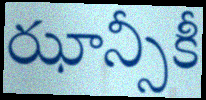
ఝాన్సీకీ